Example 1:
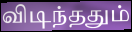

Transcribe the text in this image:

விடிந்ததும்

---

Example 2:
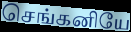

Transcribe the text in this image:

செங்கனியே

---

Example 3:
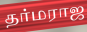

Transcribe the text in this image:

தர்மராஜ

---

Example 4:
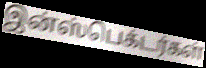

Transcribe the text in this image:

இன்ஸ்பெக்டர்கள்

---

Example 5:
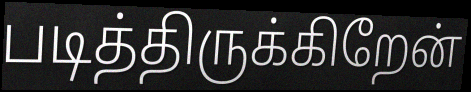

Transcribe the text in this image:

படித்திருக்கிறேன்